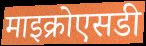
माइक्रोएसडी